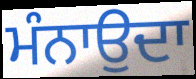
ਮੰਨਾਉਦਾ